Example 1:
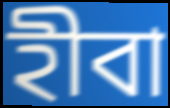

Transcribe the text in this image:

হীবা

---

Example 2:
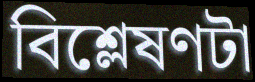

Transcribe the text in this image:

বিশ্লেষণটা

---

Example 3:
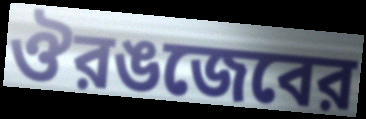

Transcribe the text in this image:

ঔরঙজেবের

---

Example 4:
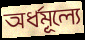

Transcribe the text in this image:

অর্ধমূল্যে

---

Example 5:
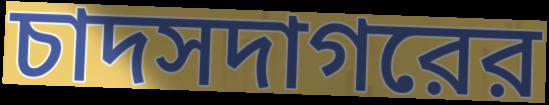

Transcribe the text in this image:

চাদসদাগরের